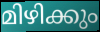
മിഴിക്കും